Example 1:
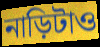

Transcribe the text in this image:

নাড়িটাও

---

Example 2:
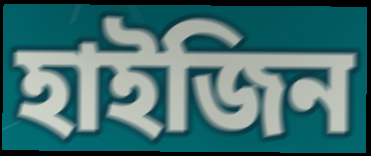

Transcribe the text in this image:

হাইজিন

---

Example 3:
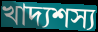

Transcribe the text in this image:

খাদ্যশস্য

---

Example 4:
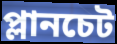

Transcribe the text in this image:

প্লানচেট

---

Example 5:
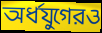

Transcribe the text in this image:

অর্ধযুগেরও